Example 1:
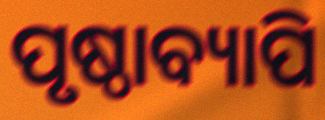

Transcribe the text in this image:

ପୃଷ୍ଠାବ୍ୟାପି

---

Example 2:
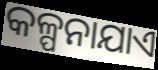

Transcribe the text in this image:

କଳ୍ପନାଯାଏ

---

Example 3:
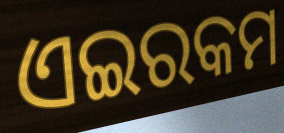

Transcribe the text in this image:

ଏଇରକମ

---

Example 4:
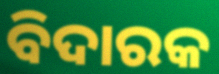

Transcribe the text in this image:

ବିଦାରକ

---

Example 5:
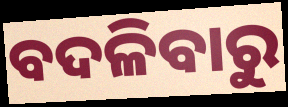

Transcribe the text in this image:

ବଦଳିବାରୁ